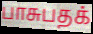
பாசுபதக்